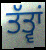
ਤੱਤ੍ਵਾਂ